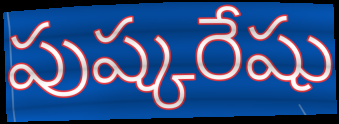
పుష్కరేషు